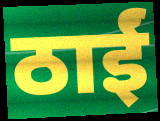
ठाईं